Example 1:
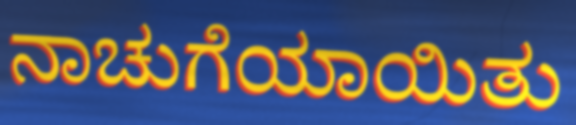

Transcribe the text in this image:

ನಾಚುಗೆಯಾಯಿತು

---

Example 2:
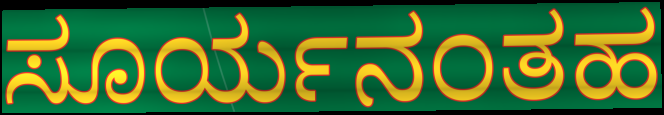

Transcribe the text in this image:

ಸೂರ್ಯನಂತಹ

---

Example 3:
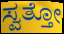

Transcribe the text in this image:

ಸ್ವತ್ತೋ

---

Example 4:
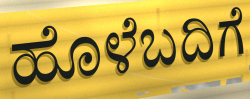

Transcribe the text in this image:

ಹೊಳೆಬದಿಗೆ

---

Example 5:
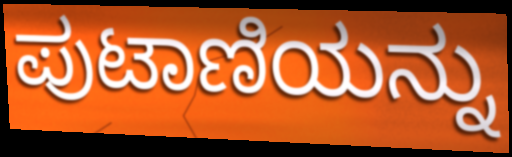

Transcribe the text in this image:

ಪುಟಾಣಿಯನ್ನು